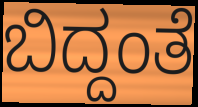
ಬಿದ್ದಂತೆ